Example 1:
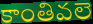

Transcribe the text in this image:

కాంతివలె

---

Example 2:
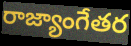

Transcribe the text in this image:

రాజ్యాంగేతర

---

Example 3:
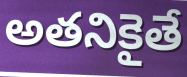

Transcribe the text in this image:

అతనికైతే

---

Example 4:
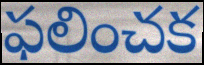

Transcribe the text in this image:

ఫలించక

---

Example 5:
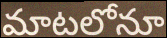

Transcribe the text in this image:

మాటలోనూ